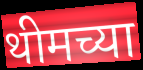
थीमच्या